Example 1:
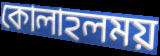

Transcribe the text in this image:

কোলাহলময়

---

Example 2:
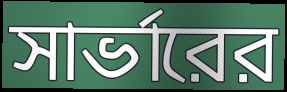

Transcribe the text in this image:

সার্ভারের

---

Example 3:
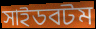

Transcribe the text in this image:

সাইডবটম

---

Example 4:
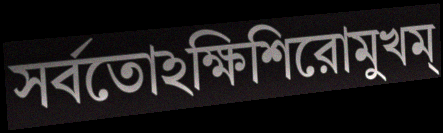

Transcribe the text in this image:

সর্বতোঽক্ষিশিরোমুখম্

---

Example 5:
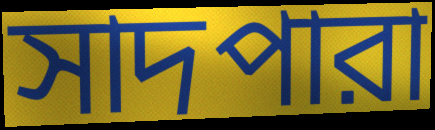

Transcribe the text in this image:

সাদপারা